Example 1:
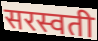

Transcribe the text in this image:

सरस्वती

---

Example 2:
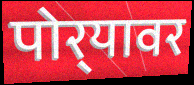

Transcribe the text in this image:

पोर्‍यावर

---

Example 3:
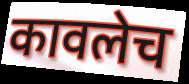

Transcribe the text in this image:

कावलेच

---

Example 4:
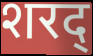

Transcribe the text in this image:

शरद्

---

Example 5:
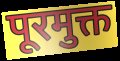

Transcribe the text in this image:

पूरमुक्त